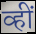
व्हीं